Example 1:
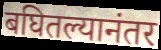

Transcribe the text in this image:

बघितल्यानंतर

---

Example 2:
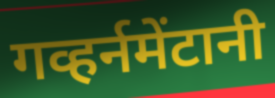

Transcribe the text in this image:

गव्हर्नमेंटानी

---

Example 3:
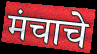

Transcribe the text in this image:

मंचाचे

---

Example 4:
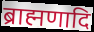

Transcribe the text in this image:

ब्राह्मणादि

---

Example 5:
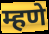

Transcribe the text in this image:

म्हणे